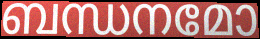
ബന്ധനമോ